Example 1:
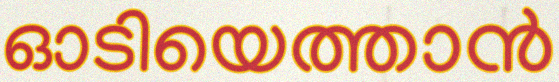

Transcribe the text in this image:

ഓടിയെത്താൻ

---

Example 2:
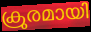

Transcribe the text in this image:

ക്രുരമായി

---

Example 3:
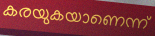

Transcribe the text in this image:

കരയുകയാണെന്ന്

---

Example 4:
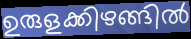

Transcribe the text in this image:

ഉരുളക്കിഴങ്ങിൽ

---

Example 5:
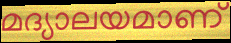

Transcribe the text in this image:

മദ്യാലയമാണ്